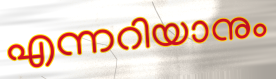
എന്നറിയാനും